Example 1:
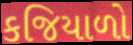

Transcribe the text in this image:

કજિયાળો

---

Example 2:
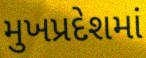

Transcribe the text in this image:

મુખપ્રદેશમાં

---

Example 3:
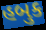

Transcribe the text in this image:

હબુક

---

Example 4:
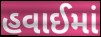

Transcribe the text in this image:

હવાઈમાં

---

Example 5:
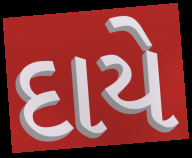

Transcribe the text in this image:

દાયે